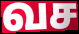
வச